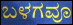
ಬಳಗವೂ